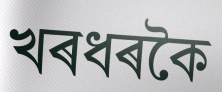
খৰধৰকৈ